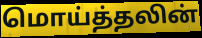
மொய்த்தலின்